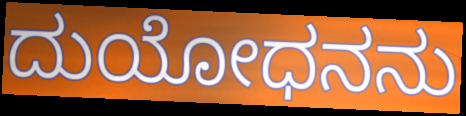
ದುಯೋಧನನು